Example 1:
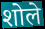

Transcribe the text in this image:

शोले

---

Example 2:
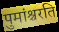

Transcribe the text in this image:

पुमांश्चरति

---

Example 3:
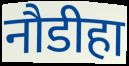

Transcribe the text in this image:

नौडीहा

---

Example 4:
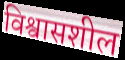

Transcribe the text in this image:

विश्वासशील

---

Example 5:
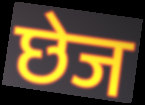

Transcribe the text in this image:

छेज